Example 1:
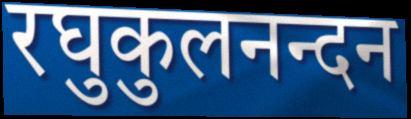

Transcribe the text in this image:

रघुकुलनन्दन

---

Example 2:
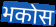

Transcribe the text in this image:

भकोस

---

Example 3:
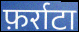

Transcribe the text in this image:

फ़र्राटा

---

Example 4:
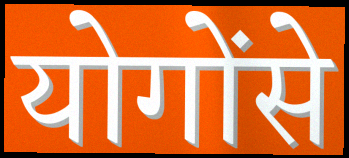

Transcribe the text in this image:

योगोंसे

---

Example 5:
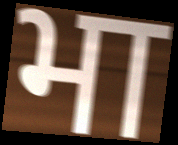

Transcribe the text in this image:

भा